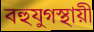
বহুযুগস্থায়ী